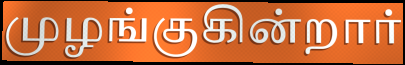
முழங்குகின்றார்